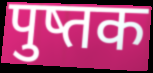
पुष्तक